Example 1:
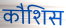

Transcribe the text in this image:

कौशिस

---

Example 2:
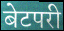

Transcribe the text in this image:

बेटपरी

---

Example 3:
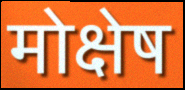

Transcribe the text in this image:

मोक्षेष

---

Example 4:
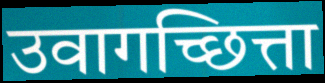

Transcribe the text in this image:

उवागच्छित्ता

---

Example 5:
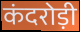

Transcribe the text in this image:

कंदरोड़ी